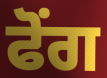
ਫੋਂਗ